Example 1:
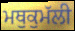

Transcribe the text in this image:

ਮਥੁਕੁਮੱਲੀ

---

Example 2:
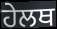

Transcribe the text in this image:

ਹੇਲਥ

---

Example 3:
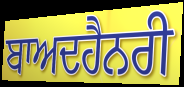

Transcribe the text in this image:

ਬਾਅਦਹੈਨਰੀ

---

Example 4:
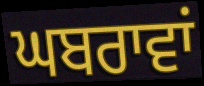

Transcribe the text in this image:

ਘਬਰਾਵਾਂ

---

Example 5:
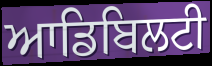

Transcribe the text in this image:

ਆਡਿਬਿਲਟੀ